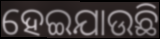
ହେଇଯାଉଛି